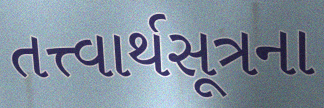
તત્ત્વાર્થસૂત્રના